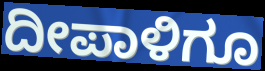
ದೀಪಾಳಿಗೂ